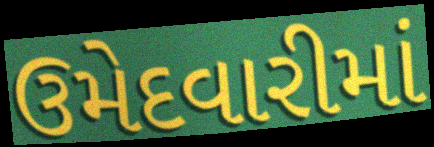
ઉમેદવારીમાં